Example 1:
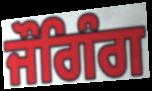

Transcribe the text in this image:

ਜੌਗਿੰਗ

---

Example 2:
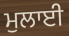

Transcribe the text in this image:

ਮੁਲਾਈ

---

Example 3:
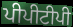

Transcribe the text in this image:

ਪੀਪੀਟੀਪੀ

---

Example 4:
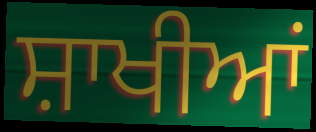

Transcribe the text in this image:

ਸ਼ਾਖੀਆਂ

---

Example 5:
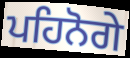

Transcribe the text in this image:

ਪਹਿਨੋਗੇ